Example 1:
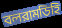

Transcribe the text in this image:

বলরামডিহি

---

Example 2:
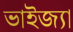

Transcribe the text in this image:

ভাইজ্যা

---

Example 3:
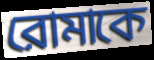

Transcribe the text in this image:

রোমাকে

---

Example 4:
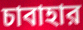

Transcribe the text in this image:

চাবাহার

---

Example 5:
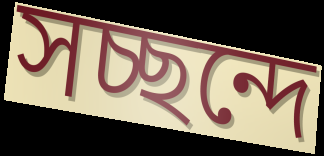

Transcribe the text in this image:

সচ্ছন্দে